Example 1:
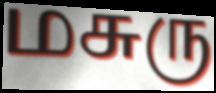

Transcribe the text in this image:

மசுரு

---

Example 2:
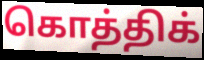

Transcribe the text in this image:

கொத்திக்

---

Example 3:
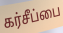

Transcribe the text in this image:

கர்சீப்பை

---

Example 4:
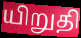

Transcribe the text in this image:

யிறுதி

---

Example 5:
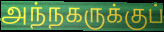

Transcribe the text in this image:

அந்நகருக்குப்